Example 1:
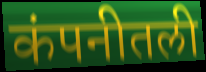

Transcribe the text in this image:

कंपनीतली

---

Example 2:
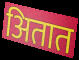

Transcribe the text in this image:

अितात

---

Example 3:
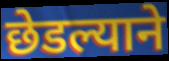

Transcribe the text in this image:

छेडल्याने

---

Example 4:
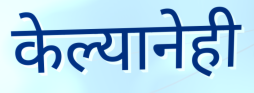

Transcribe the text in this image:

केल्यानेही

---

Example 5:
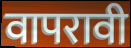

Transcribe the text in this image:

वापरावी